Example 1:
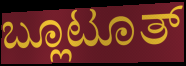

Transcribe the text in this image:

ಬ್ಲೂಟೂತ್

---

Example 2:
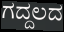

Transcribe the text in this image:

ಗದ್ದಲದ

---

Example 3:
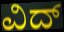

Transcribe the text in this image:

ವಿದ್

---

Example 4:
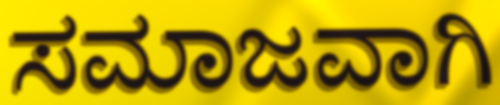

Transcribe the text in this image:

ಸಮಾಜವಾಗಿ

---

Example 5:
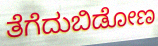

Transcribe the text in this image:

ತೆಗೆದುಬಿಡೋಣ